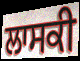
ਲਾਸਕੀ